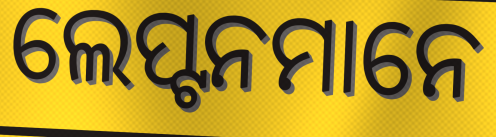
ଲେପ୍ଟନମାନେ